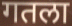
गतला